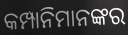
କମ୍ପାନିମାନଙ୍କର